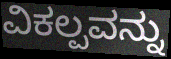
ವಿಕಲ್ಪವನ್ನು